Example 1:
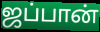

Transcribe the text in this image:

ஜப்பான்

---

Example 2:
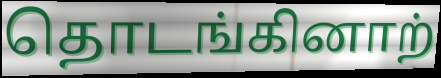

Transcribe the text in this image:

தொடங்கினாற்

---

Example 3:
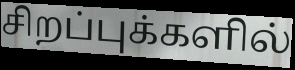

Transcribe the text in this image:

சிறப்புக்களில்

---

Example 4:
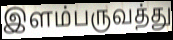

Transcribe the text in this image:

இளம்பருவத்து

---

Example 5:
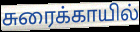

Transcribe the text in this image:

சுரைக்காயில்